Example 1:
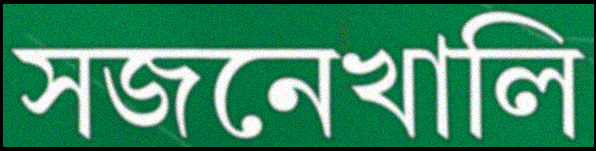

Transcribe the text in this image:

সজনেখালি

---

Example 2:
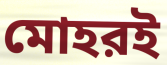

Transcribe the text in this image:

মোহরই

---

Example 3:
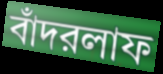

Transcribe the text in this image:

বাঁদরলাফ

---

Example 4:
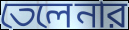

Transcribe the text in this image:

তেলেনার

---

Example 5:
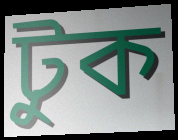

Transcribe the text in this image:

টুক